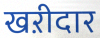
खऱीदार